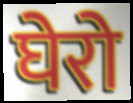
घेरो